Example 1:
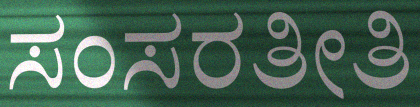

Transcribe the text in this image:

ಸಂಸರತೀತಿ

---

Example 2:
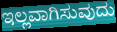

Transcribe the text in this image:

ಇಲ್ಲವಾಗಿಸುವುದು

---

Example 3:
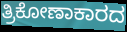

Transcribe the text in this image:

ತ್ರಿಕೋಣಾಕಾರದ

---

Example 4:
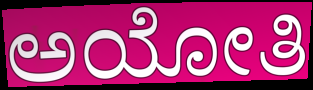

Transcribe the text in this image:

ಅಯೋತಿ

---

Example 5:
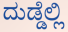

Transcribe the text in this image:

ದುಡ್ಡೆಲ್ಲಿ